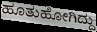
ಹೂತುಹೋಗಿದ್ದು